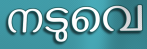
നടുവെ